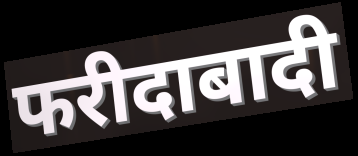
फरीदाबादी